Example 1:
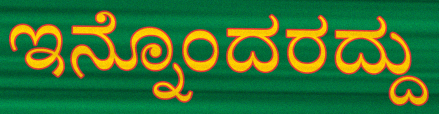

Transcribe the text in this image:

ಇನ್ನೊಂದರದ್ದು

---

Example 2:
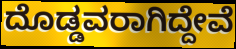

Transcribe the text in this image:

ದೊಡ್ಡವರಾಗಿದ್ದೇವೆ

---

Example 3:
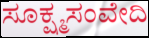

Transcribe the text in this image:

ಸೂಕ್ಷ್ಮಸಂವೇದಿ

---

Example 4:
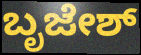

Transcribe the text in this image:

ಬೃಜೇಶ್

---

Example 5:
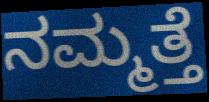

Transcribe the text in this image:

ನಮ್ಮತ್ತೆ